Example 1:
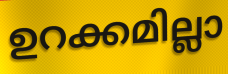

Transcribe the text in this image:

ഉറക്കമില്ലാ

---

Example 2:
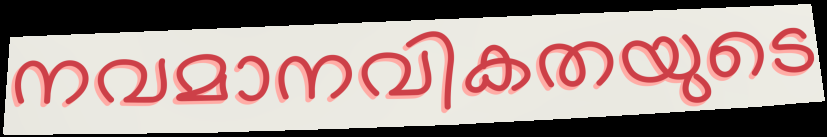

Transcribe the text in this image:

നവമാനവികതയുടെ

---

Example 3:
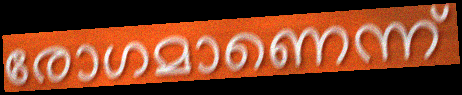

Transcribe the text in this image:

രോഗമാണെന്ന്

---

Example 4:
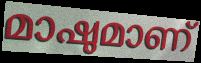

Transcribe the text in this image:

മാഷുമാണ്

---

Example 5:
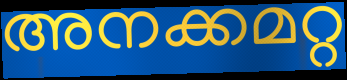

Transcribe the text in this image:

അനക്കമറ്റ